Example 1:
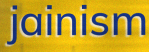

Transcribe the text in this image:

jainism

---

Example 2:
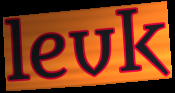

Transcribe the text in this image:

leuk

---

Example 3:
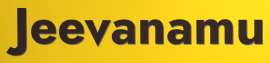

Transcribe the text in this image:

Jeevanamu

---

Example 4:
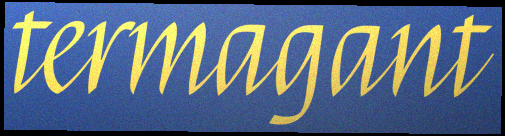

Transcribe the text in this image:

termagant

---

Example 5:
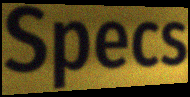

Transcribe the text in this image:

Specs